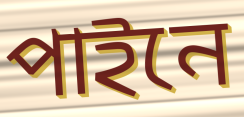
পাইনে